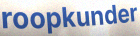
roopkunder